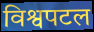
विश्वपटल